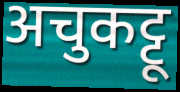
अचुकट्टू